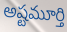
అష్టమూర్తి